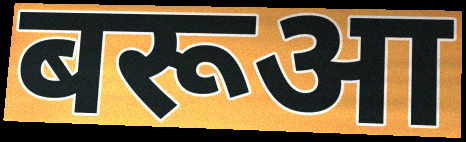
बरूआ